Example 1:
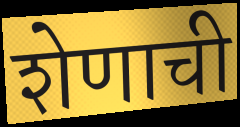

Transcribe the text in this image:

शेणाची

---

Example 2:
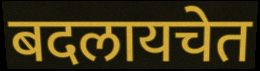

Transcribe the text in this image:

बदलायचेत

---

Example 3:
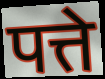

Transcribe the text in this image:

पत्ते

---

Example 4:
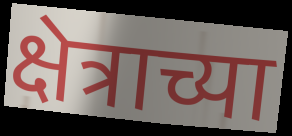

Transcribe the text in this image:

क्षेत्राच्या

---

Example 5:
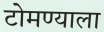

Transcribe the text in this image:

टोमण्याला